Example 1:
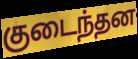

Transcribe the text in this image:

குடைந்தன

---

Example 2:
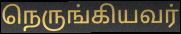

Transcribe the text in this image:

நெருங்கியவர்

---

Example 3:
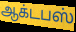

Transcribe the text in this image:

ஆக்டபஸ்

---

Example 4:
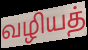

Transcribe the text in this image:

வழியத்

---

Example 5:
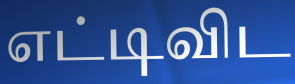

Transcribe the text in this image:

எட்டிவிட